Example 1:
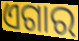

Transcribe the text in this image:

ଏଗାର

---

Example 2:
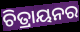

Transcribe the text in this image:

ଚିତ୍ରାୟନର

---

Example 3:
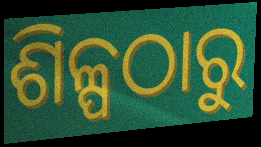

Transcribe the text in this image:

ଶିଳ୍ପଠାରୁ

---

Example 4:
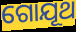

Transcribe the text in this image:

ଗୋଯୂଥ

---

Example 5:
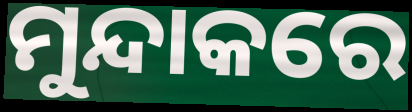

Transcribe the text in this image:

ମୁନ୍ଦାକରେ